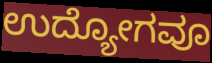
ಉದ್ಯೋಗವೂ